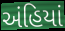
અંહિયાં